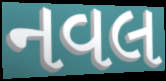
નવલ